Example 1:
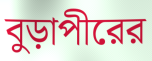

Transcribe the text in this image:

বুড়াপীরের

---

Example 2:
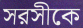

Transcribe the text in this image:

সরসীকে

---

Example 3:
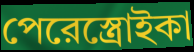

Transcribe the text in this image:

পেরেস্ত্রোইকা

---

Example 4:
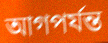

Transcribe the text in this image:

আগপর্যন্ত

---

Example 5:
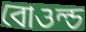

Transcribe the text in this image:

বোওল্ড